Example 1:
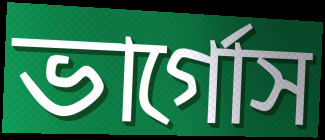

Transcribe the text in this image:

ভার্গোস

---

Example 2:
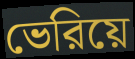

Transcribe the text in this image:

ভেরিয়ে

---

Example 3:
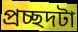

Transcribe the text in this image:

প্রচ্ছদটা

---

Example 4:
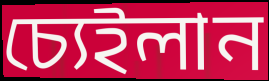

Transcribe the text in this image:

চ্যেইলান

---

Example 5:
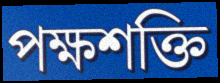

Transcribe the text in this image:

পক্ষশক্তি